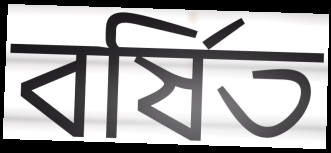
বর্ষিত